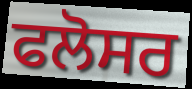
ਫਲੋਸਰ